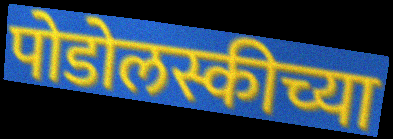
पोडोलस्कीच्या